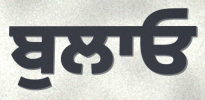
ਬੁਲਾਓ